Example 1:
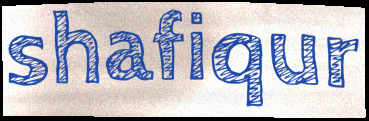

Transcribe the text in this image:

shafiqur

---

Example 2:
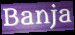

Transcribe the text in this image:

Banja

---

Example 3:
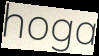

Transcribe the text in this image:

hoga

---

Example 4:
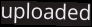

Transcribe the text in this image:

uploaded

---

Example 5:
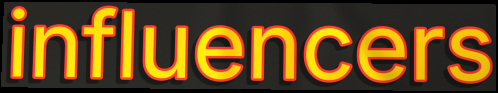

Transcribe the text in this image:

influencers